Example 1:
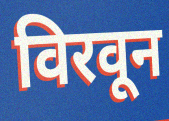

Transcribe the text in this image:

विरवून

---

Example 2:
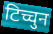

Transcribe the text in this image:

टिच्चुन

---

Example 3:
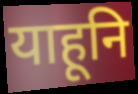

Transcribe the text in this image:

याहूनि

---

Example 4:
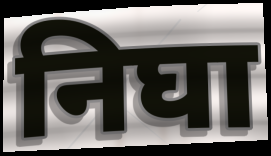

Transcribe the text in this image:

निघा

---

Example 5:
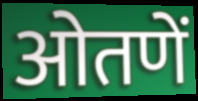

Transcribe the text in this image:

ओतणें